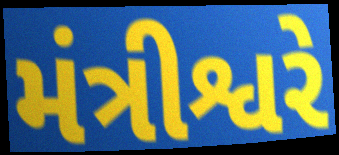
મંત્રીશ્વરે